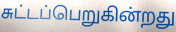
சுட்டப்பெறுகின்றது